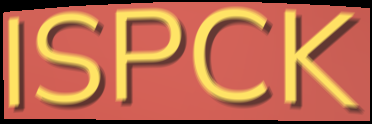
ISPCK